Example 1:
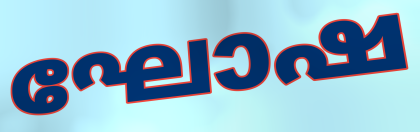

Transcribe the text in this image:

ഘോഷ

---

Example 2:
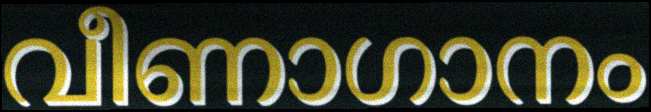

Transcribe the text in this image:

വീണാഗാനം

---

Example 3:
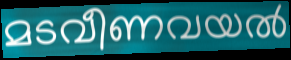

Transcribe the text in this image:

മടവീണവയൽ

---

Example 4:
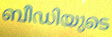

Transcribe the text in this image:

ബീഡിയുടെ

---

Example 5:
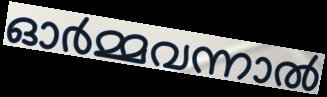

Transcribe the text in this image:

ഓർമ്മവന്നാൽ